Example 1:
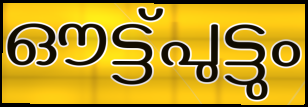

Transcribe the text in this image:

ഔട്ട്പുട്ടും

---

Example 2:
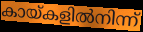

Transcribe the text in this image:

കായ്കളിൽനിന്ന്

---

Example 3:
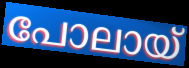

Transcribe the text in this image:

പോലായ്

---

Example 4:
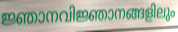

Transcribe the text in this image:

ജ്ഞാനവിജ്ഞാനങ്ങളിലും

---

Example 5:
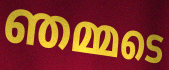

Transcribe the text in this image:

ഞമ്മടെ